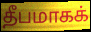
தீபமாகக்